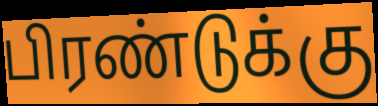
பிரண்டுக்கு